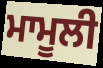
ਮਾਮੂਲੀ